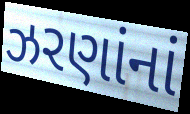
ઝરણાંનાં